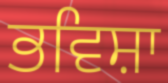
ਭਵਿਸ਼ਾ